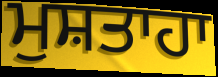
ਮੁਸ਼ਤਾਹਾ